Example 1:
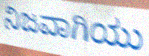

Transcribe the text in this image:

ನಿಜವಾಗಿಯು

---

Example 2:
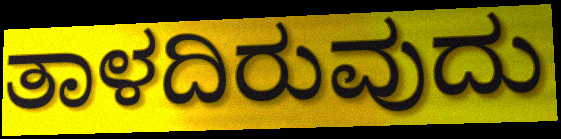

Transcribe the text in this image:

ತಾಳದಿರುವುದು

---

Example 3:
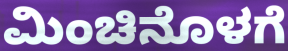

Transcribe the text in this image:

ಮಿಂಚಿನೊಳಗೆ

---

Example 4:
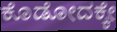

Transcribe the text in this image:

ಕೊಡೋದಕ್ಕೇ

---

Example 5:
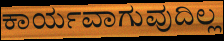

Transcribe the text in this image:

ಕಾರ್ಯವಾಗುವುದಿಲ್ಲ